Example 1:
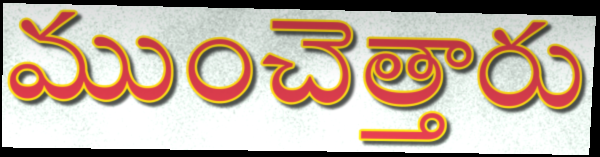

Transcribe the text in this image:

ముంచెత్తారు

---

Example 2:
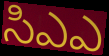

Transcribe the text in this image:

సిఎఎ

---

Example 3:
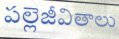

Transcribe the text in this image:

పల్లెజీవితాలు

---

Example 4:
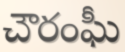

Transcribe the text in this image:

చౌరంఘీ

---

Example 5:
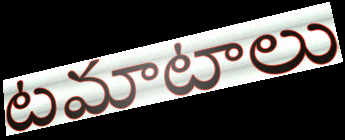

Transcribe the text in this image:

టమాటాలు